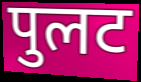
पुलट